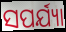
ସପର୍ଯ୍ୟା